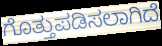
ಗೊತ್ತುಪಡಿಸಲಾಗಿದೆ